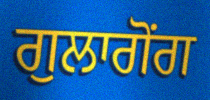
ਗੁਲਾਗੋਂਗ